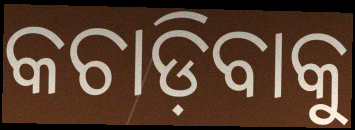
କଚାଡ଼ିବାକୁ